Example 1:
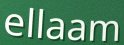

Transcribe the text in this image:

ellaam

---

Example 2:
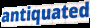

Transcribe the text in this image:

antiquated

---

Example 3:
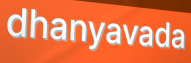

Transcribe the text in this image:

dhanyavada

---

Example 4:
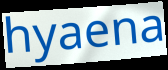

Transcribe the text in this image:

hyaena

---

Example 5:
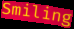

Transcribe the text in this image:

Smiling